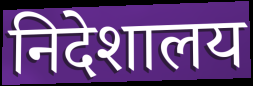
निदेशालय